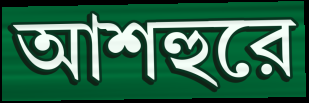
আশহুরে